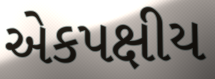
એકપક્ષીય